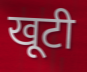
खूटी